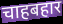
चाहबहार